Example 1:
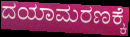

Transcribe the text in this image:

ದಯಾಮರಣಕ್ಕೆ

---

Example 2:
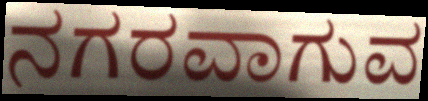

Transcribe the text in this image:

ನಗರವಾಗುವ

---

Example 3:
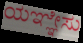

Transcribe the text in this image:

ಯಞ್ಞೇಸು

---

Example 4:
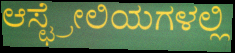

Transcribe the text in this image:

ಆಸ್ಟ್ರೇಲಿಯಗಳಲ್ಲಿ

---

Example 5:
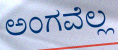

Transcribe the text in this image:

ಅಂಗವೆಲ್ಲ